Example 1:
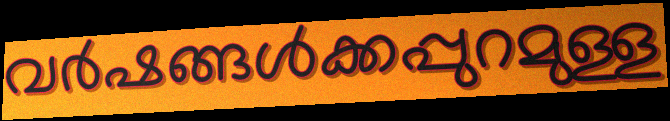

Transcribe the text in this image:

വർഷങ്ങൾക്കപ്പുറമുള്ള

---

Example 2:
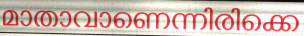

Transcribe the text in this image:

മാതാവാണെന്നിരിക്കെ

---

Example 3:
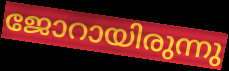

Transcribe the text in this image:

ജോറായിരുന്നു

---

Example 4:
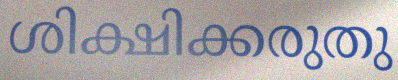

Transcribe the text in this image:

ശിക്ഷിക്കരുതു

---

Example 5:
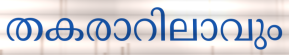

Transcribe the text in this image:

തകരാറിലാവും